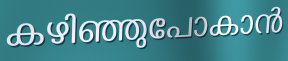
കഴിഞ്ഞുപോകാൻ